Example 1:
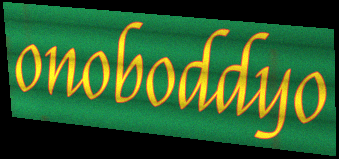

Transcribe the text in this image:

onoboddyo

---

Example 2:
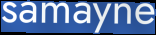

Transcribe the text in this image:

samayne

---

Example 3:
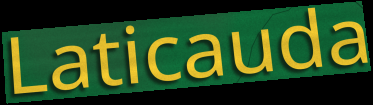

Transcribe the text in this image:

Laticauda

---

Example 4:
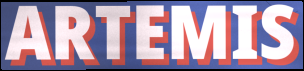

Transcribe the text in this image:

ARTEMIS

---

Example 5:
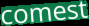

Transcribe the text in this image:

comest